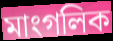
মাংগলিক